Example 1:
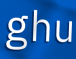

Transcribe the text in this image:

ghu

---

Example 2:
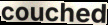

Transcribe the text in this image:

couched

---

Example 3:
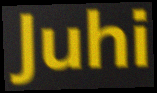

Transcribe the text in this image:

Juhi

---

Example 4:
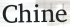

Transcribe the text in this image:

Chine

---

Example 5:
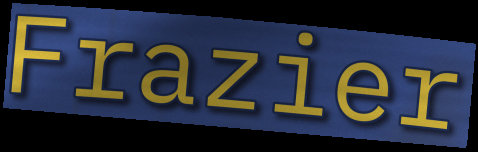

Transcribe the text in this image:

Frazier